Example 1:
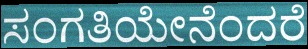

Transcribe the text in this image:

ಸಂಗತಿಯೇನೆಂದರೆ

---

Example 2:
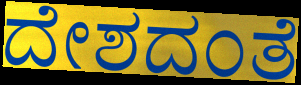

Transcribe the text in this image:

ದೇಶದಂತೆ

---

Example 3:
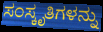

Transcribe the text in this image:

ಸಂಸ್ಕೃತಿಗಳನ್ನು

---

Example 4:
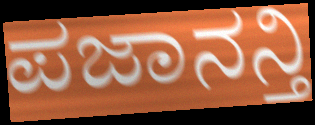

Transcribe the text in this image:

ಪಜಾನನ್ತಿ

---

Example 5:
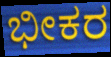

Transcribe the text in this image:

ಭೀಕರ